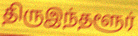
திருஇந்தளூர்